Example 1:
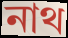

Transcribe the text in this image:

নাথ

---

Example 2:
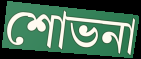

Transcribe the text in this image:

শোভনা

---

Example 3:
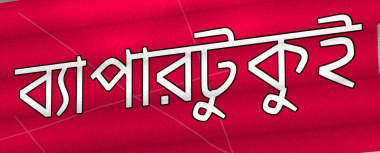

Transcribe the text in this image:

ব্যাপারটুকুই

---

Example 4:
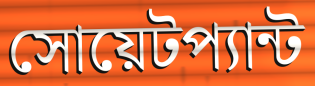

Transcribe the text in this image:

সোয়েটপ্যান্ট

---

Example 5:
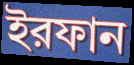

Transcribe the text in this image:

ইরফান